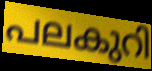
പലകുറി